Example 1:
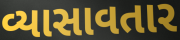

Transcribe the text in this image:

વ્યાસાવતાર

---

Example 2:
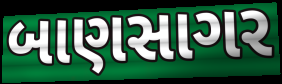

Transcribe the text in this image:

બાણસાગર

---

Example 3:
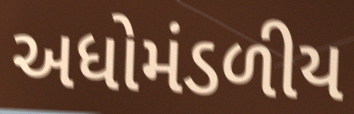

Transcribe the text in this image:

અધોમંડળીય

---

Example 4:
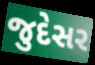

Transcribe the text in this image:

જુદેસર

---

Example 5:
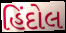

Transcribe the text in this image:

હિંદોલ